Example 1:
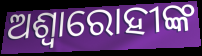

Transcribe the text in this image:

ଅଶ୍ୱାରୋହୀଙ୍କ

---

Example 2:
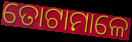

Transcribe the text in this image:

ତୋଟାମାଳେ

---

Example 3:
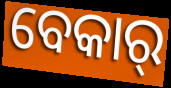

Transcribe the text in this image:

ବେକାର୍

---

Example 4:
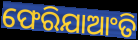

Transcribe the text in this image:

ଫେରିଯାଆଂତି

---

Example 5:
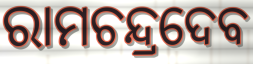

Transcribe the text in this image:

ରାମଚନ୍ଦ୍ରଦେବ